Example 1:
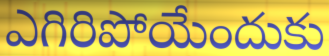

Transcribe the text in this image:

ఎగిరిపోయేందుకు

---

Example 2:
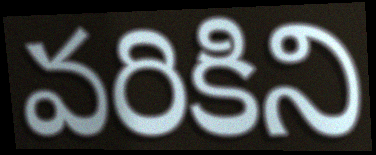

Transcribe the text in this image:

వరికిని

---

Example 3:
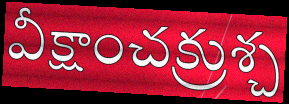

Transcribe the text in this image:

వీక్షాంచక్రుశ్చ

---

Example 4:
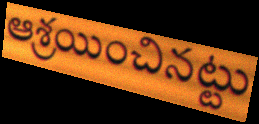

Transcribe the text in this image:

ఆశ్రయించినట్టు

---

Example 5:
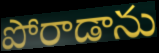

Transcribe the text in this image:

పోరాడాను